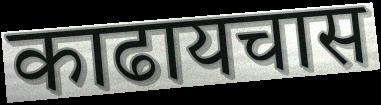
काढायचास